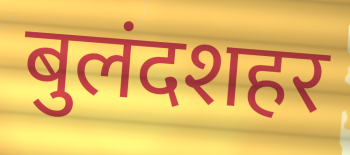
बुलंदशहर